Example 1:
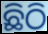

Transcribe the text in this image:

ଛିଠି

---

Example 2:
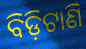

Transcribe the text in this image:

ବିଡ଼ିଟାଣି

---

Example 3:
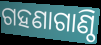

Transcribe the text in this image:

ଗହଣାଗାଣ୍ଠି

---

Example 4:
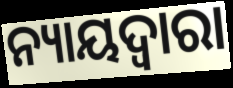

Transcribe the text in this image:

ନ୍ୟାୟଦ୍ୱାରା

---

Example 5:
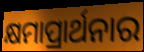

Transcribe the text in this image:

କ୍ଷମାପ୍ରାର୍ଥନାର